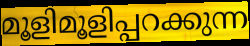
മൂളിമൂളിപ്പറക്കുന്ന